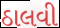
ઠાલવી